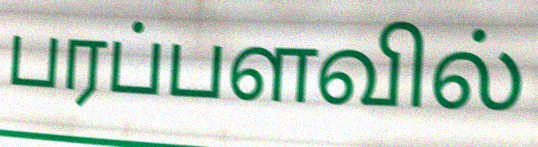
பரப்பளவில்